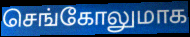
செங்கோலுமாக